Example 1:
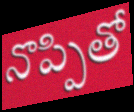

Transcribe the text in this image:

నొప్పితో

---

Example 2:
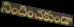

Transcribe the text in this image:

నిందించకుండా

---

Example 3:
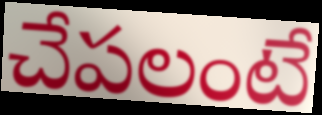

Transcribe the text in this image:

చేపలంటే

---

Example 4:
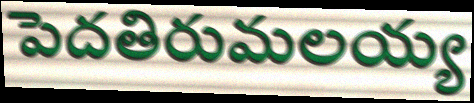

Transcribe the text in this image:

పెదతిరుమలయ్య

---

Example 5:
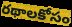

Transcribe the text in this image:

రథాలకోసం